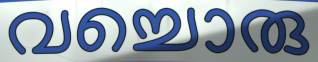
വച്ചൊരു